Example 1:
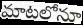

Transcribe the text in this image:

మాటలోనూ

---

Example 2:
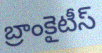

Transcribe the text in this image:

బ్రాంకైటీస్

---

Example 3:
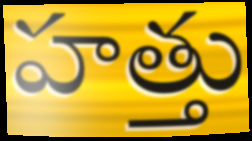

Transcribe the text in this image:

హత్తు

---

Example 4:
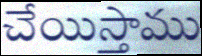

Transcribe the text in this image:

చేయిస్తాము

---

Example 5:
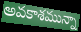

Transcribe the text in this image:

అవకాశమున్నా